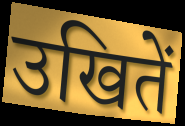
उखितें